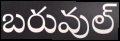
బరువుల్